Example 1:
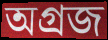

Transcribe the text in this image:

অগ্রজ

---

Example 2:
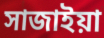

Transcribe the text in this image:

সাজাইয়া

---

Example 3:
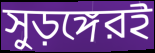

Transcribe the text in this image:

সুড়ঙ্গেরই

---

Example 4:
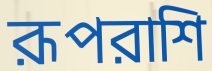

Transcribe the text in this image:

রূপরাশি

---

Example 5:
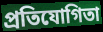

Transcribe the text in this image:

প্রতিযোগিতা